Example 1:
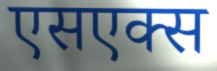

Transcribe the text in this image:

एसएक्स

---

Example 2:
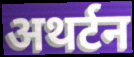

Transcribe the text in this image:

अथर्टन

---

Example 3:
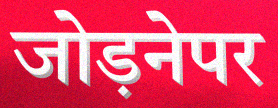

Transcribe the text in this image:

जोड़नेपर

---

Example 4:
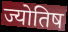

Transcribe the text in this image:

ज्योतिष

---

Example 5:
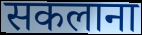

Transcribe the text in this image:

सकलाना